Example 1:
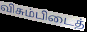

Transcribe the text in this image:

விசும்பிடைத்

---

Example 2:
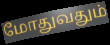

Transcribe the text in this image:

மோதுவதும்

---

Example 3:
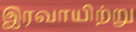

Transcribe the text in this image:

இரவாயிற்று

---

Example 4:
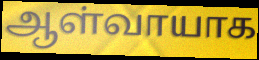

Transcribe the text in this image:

ஆள்வாயாக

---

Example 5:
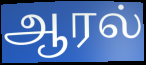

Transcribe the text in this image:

ஆரல்